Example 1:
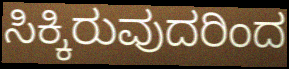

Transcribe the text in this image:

ಸಿಕ್ಕಿರುವುದರಿಂದ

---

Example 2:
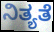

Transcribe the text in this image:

ನಿತ್ಯತೆ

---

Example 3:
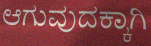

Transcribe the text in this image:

ಆಗುವುದಕ್ಕಾಗಿ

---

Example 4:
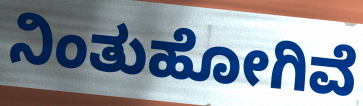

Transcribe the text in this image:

ನಿಂತುಹೋಗಿವೆ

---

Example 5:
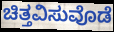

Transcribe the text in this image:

ಚಿತ್ತವಿಸುವೊಡೆ